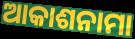
ଆକାଶନାମା